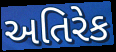
અતિરેક